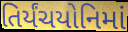
તિર્યંચયોનિમાં